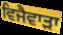
ਵਿਜੈਵਾੜਾ